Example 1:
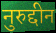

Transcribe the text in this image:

नुरुद्दीन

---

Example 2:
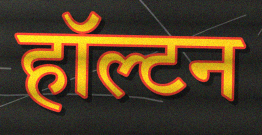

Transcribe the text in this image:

हॉल्टन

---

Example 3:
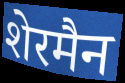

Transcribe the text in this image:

शेरमैन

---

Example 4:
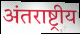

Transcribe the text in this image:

अंतराष्ट्रीय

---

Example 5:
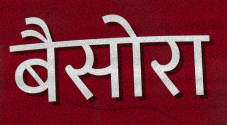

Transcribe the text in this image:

बैसोरा